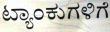
ಟ್ಯಾಂಕುಗಳಿಗೆ